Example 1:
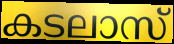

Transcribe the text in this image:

കടലാസ്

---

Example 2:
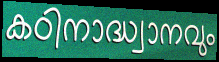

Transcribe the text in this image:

കഠിനാദ്ധ്വാനവും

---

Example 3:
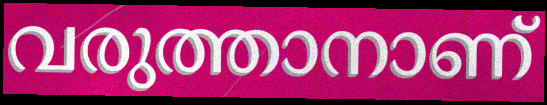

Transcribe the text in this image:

വരുത്താനാണ്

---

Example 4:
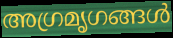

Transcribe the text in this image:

അഗ്രമൃഗങ്ങൾ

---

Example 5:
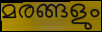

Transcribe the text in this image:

മരങ്ങളും